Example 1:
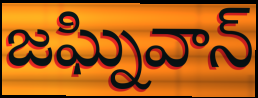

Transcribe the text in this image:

జఘ్నివాన్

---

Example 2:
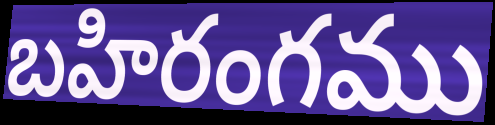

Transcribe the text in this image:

బహిరంగము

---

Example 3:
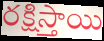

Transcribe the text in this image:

రక్షిస్తాయి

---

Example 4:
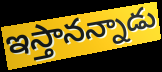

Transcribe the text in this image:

ఇస్తానన్నాడు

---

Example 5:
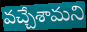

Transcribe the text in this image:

వచ్చేశామని